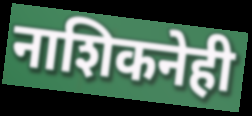
नाशिकनेही